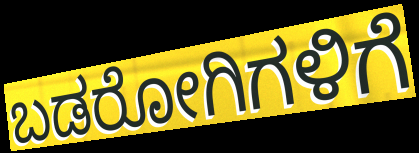
ಬಡರೋಗಿಗಳಿಗೆ